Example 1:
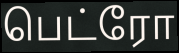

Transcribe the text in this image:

பெட்ரோ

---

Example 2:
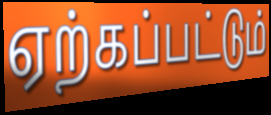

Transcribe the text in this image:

ஏற்கப்பட்டும்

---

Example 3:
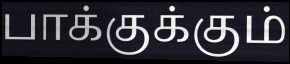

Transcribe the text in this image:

பாக்குக்கும்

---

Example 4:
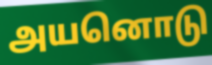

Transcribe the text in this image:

அயனொடு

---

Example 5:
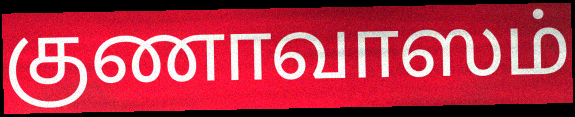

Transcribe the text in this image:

குணாவாஸம்